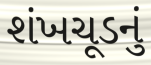
શંખચૂડનું